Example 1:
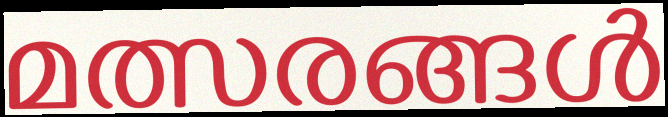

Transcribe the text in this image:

മത്സരങ്ങൾ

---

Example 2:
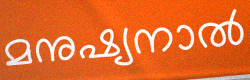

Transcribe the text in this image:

മനുഷ്യനാൽ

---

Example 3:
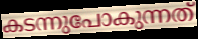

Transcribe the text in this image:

കടന്നുപോകുന്നത്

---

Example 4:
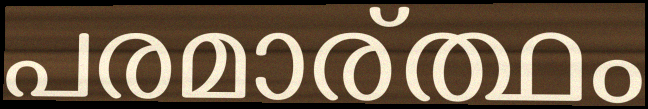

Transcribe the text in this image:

പരമാര്ത്ഥം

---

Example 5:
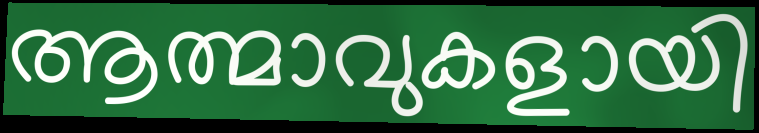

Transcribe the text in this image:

ആത്മാവുകളായി